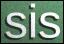
sis